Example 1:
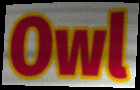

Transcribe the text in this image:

Owl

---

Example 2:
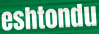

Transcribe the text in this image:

eshtondu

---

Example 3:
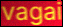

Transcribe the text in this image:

vagai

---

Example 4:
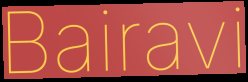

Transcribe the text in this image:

Bairavi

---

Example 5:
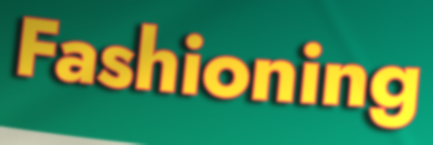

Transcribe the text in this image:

Fashioning